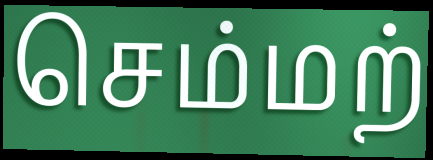
செம்மற்